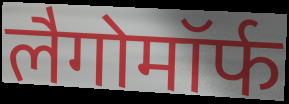
लैगोमॉर्फ